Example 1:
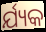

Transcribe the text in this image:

ର୍ଯ୍ୟକ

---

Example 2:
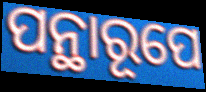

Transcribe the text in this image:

ପନ୍ଥାରୂପେ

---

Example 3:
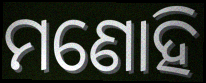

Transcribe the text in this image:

ମଣୋହି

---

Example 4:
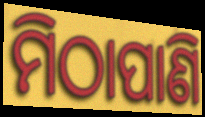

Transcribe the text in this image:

ମିଠାପାଣି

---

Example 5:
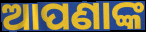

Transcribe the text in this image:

ଆପଣାଙ୍କ